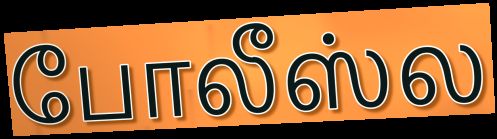
போலீஸ்ல